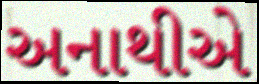
અનાથીએ